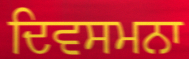
ਦਿਵਸਮਨਾ